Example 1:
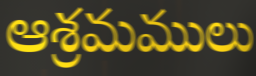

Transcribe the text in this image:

ఆశ్రమములు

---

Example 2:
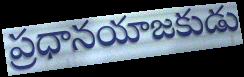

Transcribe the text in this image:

ప్రధానయాజకుడు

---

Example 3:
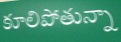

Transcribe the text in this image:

కూలిపోతున్నా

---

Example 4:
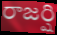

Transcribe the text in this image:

రాజర్షి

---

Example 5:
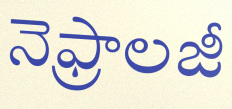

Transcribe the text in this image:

నెఫ్రాలజీ